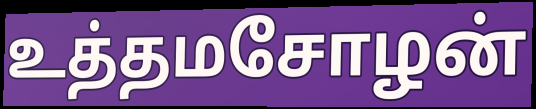
உத்தமசோழன்